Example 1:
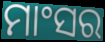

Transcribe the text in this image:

ମାଂସର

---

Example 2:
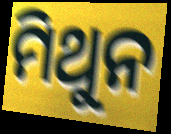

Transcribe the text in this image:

ମିଥୁନ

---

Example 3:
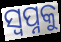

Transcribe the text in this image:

ସ୍ବପ୍ନକୁ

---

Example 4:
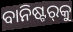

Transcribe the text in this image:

ବାନିଷ୍ଟର୍‍କୁ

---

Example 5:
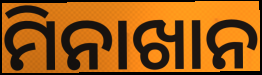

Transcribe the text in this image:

ମିନାଖାନ